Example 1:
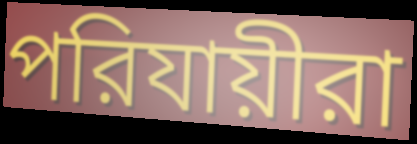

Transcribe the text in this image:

পরিযায়ীরা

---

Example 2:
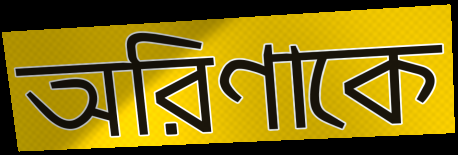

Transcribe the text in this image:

অরিণাকে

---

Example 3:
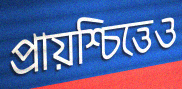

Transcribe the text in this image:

প্রায়শ্চিত্তেও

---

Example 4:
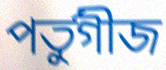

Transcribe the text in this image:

পর্তুগীজ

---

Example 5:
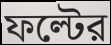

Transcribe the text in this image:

ফল্টের